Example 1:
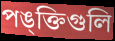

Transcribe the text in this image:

পঙ্‌ক্তিগুলি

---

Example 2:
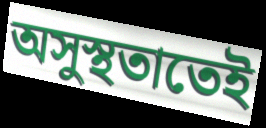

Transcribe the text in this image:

অসুস্থতাতেই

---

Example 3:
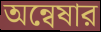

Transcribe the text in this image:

অন্বেষার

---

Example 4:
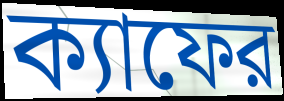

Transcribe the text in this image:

ক্যাফের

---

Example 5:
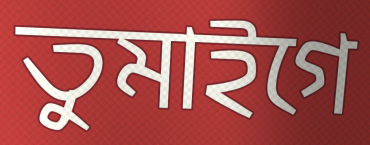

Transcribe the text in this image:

তুমাইগে